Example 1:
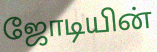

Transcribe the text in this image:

ஜோடியின்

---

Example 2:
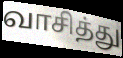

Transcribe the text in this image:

வாசித்து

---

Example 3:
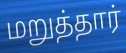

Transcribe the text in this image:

மறுத்தார்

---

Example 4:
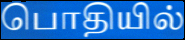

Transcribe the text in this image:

பொதியில்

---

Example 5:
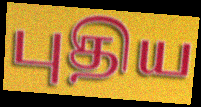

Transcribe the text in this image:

புதிய